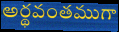
అర్థవంతముగా